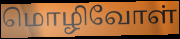
மொழிவோள்